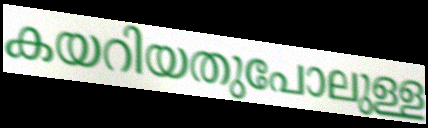
കയറിയതുപോലുള്ള